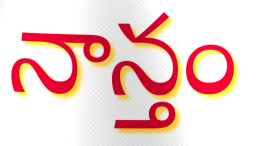
నాన్తం